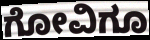
ಗೋವಿಗೂ